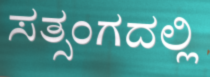
ಸತ್ಸಂಗದಲ್ಲಿ